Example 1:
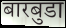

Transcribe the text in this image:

बारबुडा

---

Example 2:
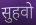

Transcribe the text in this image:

सुहवो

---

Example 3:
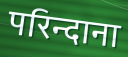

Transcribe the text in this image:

परिन्दाना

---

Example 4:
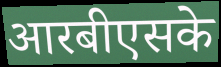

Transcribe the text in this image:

आरबीएसके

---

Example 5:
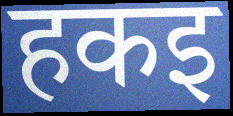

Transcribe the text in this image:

हकइ